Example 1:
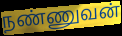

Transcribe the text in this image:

நண்ணுவன்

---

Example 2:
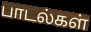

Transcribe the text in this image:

பாடல்கள்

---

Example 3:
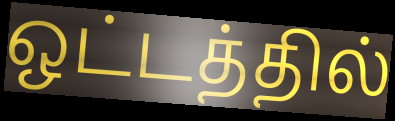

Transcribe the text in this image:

ஒட்டத்தில்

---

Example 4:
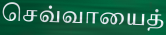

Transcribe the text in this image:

செவ்வாயைத்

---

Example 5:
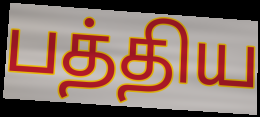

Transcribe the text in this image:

பத்திய